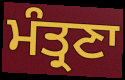
ਮੰਤ੍ਰਣਾ